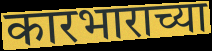
कारभाराच्या